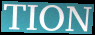
TION